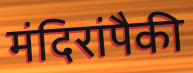
मंदिरांपैकी